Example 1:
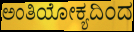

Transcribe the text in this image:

ಅಂತಿಯೋಕ್ಯದಿಂದ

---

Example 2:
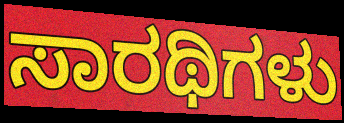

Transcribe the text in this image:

ಸಾರಥಿಗಳು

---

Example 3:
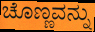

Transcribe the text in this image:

ಚೊಣ್ಣವನ್ನು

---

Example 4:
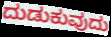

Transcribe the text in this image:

ದುಡುಕುವುದು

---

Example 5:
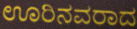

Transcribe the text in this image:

ಊರಿನವರಾದ